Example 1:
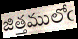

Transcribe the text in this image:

జిత్తములోఁ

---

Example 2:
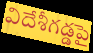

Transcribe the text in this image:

విదేశీగడ్డపై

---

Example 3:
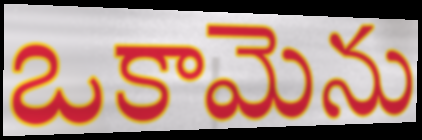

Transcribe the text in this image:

ఒకామెను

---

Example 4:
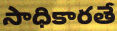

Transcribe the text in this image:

సాధికారతే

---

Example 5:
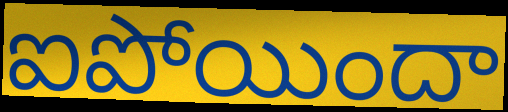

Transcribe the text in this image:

ఐపోయిందా